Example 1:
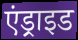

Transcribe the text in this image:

एंड्राइड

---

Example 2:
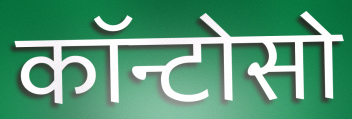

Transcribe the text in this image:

कॉन्टोसो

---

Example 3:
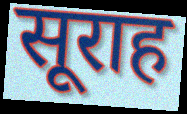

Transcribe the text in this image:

सूराह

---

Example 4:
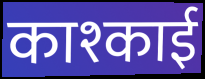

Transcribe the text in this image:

काश्काई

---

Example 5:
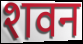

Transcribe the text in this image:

शवन